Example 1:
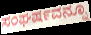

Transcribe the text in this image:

ಸಂಘರ್ಷವನ್ನೂ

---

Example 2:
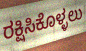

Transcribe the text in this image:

ರಕ್ಷಿಸಿಕೊಳ್ಳಲು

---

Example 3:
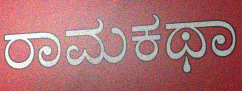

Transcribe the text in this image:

ರಾಮಕಥಾ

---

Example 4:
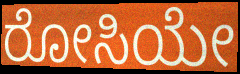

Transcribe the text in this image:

ರೋಸಿಯೇ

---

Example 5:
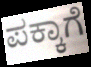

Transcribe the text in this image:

ಪಕ್ಕಾಗೆ